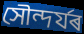
সৌন্দৰ্যৰ